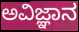
ಅವಿಜ್ಞಾನ